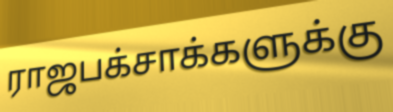
ராஜபக்சாக்களுக்கு